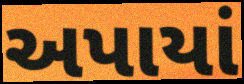
અપાયાં